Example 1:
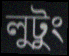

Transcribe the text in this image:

লুটুং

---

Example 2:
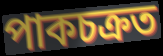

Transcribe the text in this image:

পাকচক্ৰত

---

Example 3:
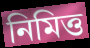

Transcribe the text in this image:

নিমিত্ত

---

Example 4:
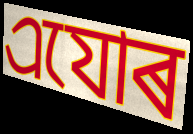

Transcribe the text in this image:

এযোৰ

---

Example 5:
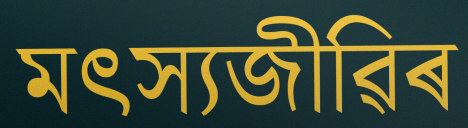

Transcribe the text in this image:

মৎস্যজীৱিৰ